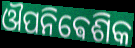
ଔପନିଵେଶିକ